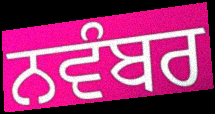
ਨਵੰਬਰ